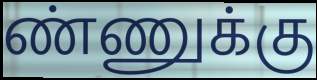
ண்ணுக்கு